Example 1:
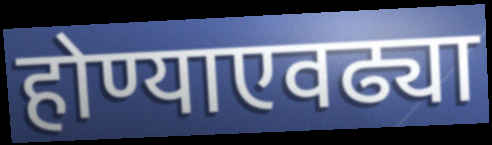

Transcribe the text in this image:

होण्याएवढ्या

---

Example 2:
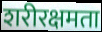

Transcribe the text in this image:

शरीरक्षमता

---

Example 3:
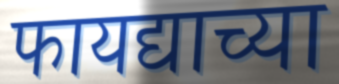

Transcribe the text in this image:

फायद्याच्या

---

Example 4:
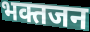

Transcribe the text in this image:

भक्तजन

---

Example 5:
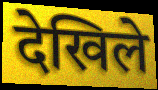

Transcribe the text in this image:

देखिले